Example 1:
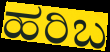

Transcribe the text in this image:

ಹರಿಬ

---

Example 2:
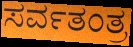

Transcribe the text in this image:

ಸರ್ವತಂತ್ರ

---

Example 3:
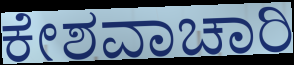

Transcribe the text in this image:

ಕೇಶವಾಚಾರಿ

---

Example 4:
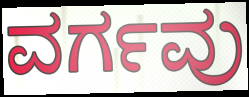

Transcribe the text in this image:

ವರ್ಗವು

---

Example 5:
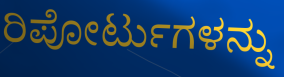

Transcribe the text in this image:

ರಿಪೋರ್ಟುಗಳನ್ನು